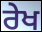
ਰੇਖ